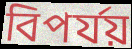
বিপৰ্যয়